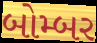
બોમ્બર